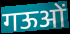
गऊओं